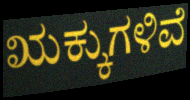
ಋಕ್ಕುಗಳಿವೆ